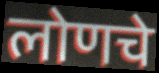
लोणचे